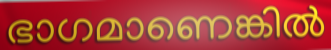
ഭാഗമാണെങ്കിൽ